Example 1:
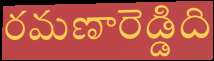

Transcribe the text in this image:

రమణారెడ్డిది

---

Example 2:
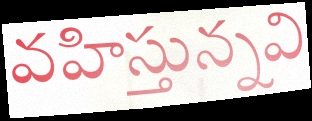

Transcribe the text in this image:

వహిస్తున్నవి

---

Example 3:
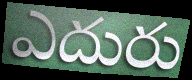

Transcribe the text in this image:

ఎదురు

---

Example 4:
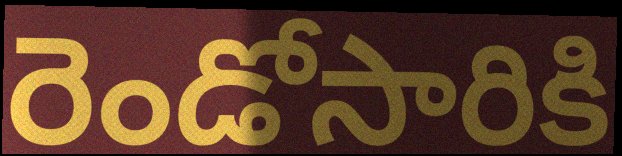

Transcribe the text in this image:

రెండోసారికి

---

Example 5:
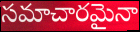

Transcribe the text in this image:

సమాచారమైనా